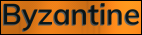
Byzantine